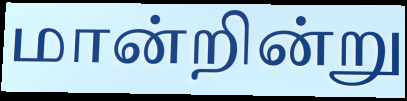
மான்றின்று